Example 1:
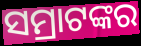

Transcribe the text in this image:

ସମ୍ରାଟଙ୍କର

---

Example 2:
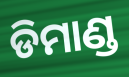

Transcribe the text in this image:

ଡିମାଣ୍ଡ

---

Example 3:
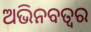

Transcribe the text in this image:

ଅଭିନବତ୍ୱର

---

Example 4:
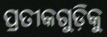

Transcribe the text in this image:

ପ୍ରତୀକଗୁଡ଼ିକୁ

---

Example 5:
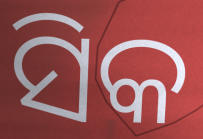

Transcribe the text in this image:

ସିକ